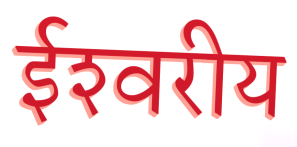
ईश्वरीय